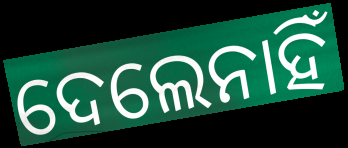
ଦେଲେନାହିଁ